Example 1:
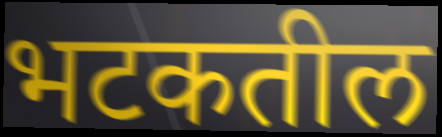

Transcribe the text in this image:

भटकतील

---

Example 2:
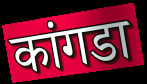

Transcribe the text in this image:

कांगडा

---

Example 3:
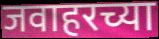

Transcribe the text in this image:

जवाहरच्या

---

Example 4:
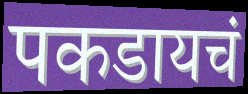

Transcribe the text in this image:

पकडायचं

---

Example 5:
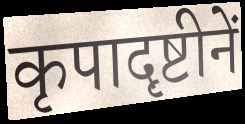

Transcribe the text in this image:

कृपादृष्टीनें